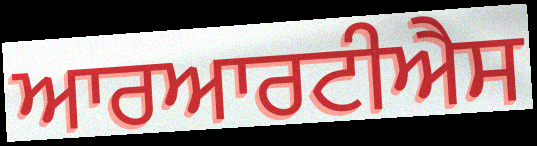
ਆਰਆਰਟੀਐਸ